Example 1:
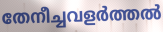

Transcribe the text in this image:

തേനീച്ചവളർത്തൽ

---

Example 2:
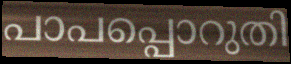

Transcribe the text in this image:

പാപപ്പൊറുതി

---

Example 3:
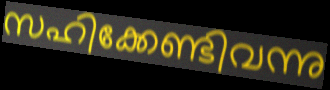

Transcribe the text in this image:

സഹിക്കേണ്ടിവന്നു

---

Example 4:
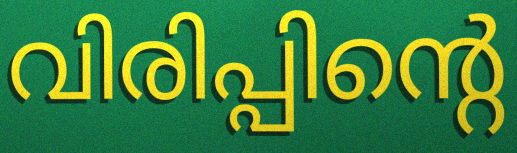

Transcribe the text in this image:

വിരിപ്പിന്റെ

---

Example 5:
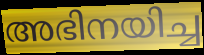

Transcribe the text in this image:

അഭിനയിച്ച